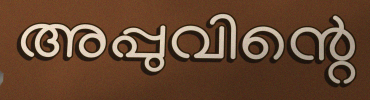
അപ്പുവിന്റെ